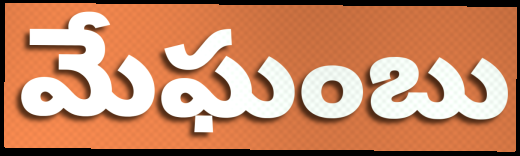
మేఘంబు